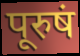
पूरुषं